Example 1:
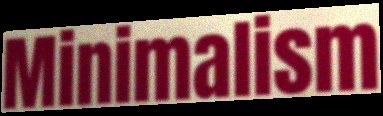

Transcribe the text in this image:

Minimalism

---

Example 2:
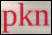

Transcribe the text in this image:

pkn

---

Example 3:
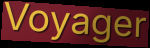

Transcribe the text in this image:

Voyager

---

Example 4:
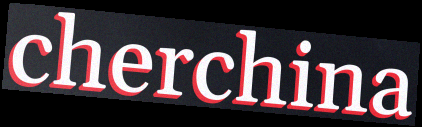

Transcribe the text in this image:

cherchina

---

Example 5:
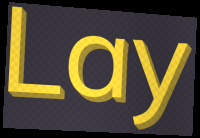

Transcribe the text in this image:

Lay